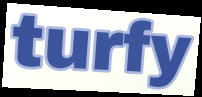
turfy